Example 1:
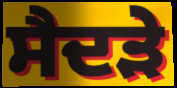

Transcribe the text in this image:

ਸੈਦੜੇ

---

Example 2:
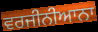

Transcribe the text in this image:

ਵਰਜੀਨੀਆਨਾ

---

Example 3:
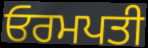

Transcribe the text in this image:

ਓਰਮਪਤੀ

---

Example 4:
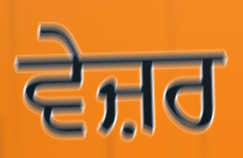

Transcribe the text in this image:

ਵੇਜ਼ਰ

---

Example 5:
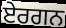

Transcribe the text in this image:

ਏਰਗਨ